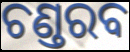
ଚଣ୍ଡରବ